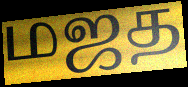
மஜத